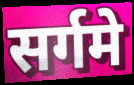
सर्गमे